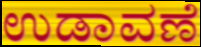
ಉಡಾವಣೆ